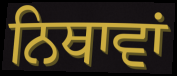
ਨਿਥਾਵਾਂ